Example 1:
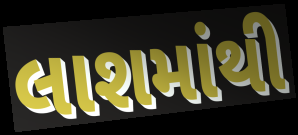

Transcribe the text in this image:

લાશમાંથી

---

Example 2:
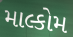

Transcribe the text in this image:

માલ્કોમ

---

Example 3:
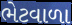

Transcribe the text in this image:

ભેટવાળા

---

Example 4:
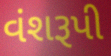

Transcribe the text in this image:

વંશરૂપી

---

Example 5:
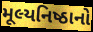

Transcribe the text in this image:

મૂલ્યનિષ્ઠાનો